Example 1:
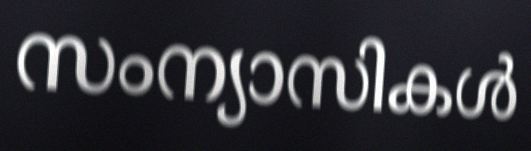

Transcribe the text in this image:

സംന്യാസികൾ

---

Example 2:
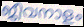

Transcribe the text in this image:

ജീവനാളം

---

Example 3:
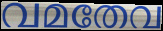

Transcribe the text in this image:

വമതേവ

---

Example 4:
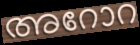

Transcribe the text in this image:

അറോറ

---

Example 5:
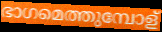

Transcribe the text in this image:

ഭാഗമെത്തുമ്പോള്